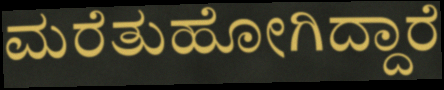
ಮರೆತುಹೋಗಿದ್ದಾರೆ